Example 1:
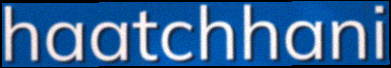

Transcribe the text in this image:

haatchhani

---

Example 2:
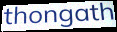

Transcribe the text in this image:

thongath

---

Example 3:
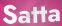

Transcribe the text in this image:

Satta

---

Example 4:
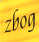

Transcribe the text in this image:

zbog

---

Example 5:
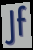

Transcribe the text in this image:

Jf